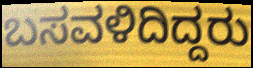
ಬಸವಳಿದಿದ್ದರು